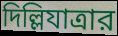
দিল্লিযাত্রার